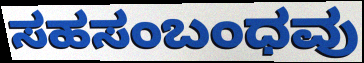
ಸಹಸಂಬಂಧವು